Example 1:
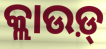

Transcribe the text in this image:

କ୍ଲାଉଡ଼୍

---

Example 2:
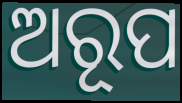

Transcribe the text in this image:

ଅରୂପ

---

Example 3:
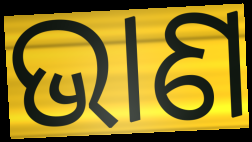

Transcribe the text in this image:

ଭାଣ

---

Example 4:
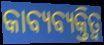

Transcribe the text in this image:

କାବ୍ୟବ୍ୟକ୍ତିତ୍ୱ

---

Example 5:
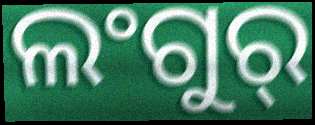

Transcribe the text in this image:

ଲଂଗୁର୍